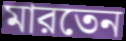
মারতেন